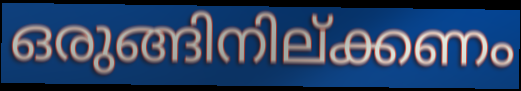
ഒരുങ്ങിനില്ക്കണം